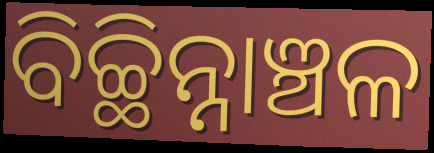
ବିଚ୍ଛିନ୍ନାଞ୍ଚଳ